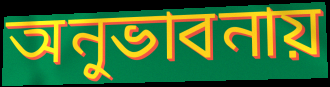
অনুভাবনায়